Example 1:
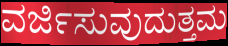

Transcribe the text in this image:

ವರ್ಜಿಸುವುದುತ್ತಮ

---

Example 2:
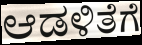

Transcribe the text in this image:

ಆಡಳಿತೆಗೆ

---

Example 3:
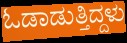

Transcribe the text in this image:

ಓಡಾಡುತ್ತಿದ್ದಳು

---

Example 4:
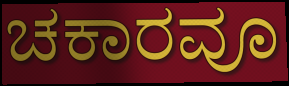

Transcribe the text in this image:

ಚಕಾರವೂ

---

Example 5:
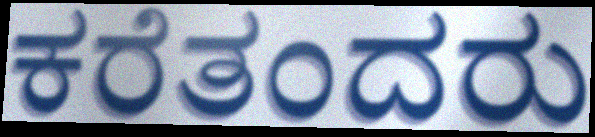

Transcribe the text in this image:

ಕರೆತಂದರು